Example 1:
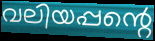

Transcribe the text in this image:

വലിയപ്പന്റെ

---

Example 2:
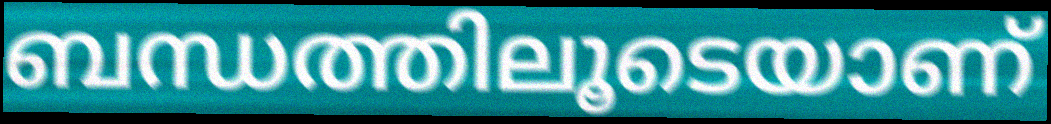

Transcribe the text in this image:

ബന്ധത്തിലൂടെയാണ്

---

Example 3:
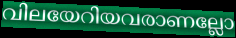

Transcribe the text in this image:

വിലയേറിയവരാണല്ലോ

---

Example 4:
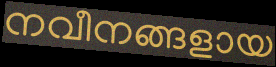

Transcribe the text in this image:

നവീനങ്ങളായ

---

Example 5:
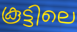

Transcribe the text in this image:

കൂട്ടിലെ